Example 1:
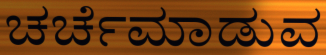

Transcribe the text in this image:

ಚರ್ಚೆಮಾಡುವ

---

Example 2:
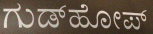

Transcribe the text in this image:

ಗುಡ್‌ಹೋಪ್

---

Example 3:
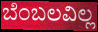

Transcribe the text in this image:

ಬೆಂಬಲವಿಲ್ಲ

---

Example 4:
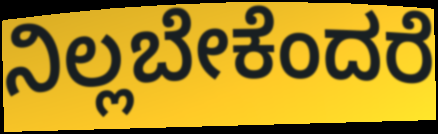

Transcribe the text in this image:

ನಿಲ್ಲಬೇಕೆಂದರೆ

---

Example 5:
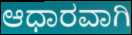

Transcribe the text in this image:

ಆಧಾರವಾಗಿ